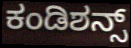
ಕಂಡಿಶನ್ಸ್